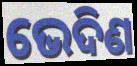
ଭେଦିଣ